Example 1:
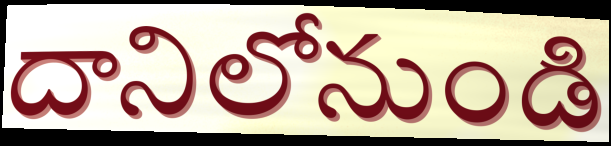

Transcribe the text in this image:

దానిలోనుండి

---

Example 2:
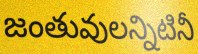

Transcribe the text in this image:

జంతువులన్నిటినీ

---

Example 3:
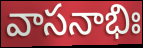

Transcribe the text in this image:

వాసనాభిః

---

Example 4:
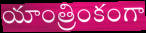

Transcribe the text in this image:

యాంత్రింకంగా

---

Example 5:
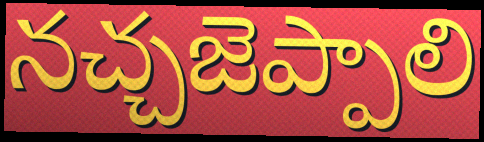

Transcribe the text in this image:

నచ్చజెప్పాలి